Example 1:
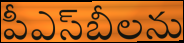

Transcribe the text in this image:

పీఎస్‌బీలను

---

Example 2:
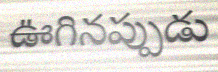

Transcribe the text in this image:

ఊగినప్పుడు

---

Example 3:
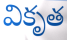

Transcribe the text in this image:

వికృత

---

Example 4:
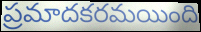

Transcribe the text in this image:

ప్రమాదకరమయింది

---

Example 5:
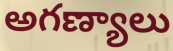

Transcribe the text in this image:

అగణ్యాలు